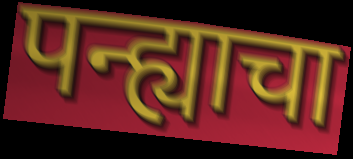
पन्ह्याचा